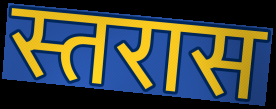
स्तरास